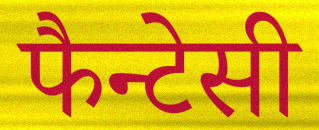
फैन्टेसी